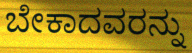
ಬೇಕಾದವರನ್ನು